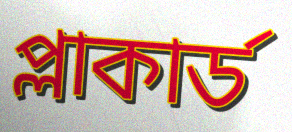
প্লাকার্ড